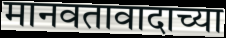
मानवतावादाच्या